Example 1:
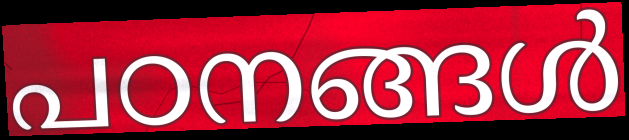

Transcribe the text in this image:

പഠനങ്ങൾ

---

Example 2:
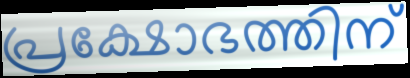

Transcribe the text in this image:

പ്രക്ഷോഭത്തിന്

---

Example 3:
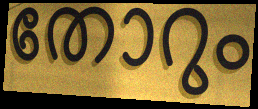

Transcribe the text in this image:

തോറും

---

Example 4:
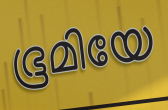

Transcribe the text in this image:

ഭൂമിയേ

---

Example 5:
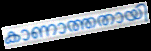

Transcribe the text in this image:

കാണാത്തതായി